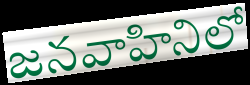
జనవాహినిలో